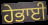
ਹੇਭਾਈ